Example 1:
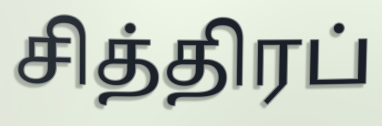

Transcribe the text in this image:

சித்திரப்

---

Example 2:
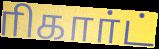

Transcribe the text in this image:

ரிகார்ட்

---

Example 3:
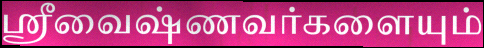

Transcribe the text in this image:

ஸ்ரீவைஷ்ணவர்களையும்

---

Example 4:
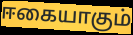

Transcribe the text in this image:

ஈகையாகும்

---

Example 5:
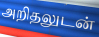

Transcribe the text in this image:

அறிதலுடன்